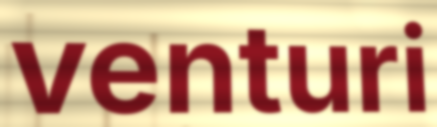
venturi